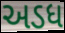
અડધ